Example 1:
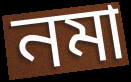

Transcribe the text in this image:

নমা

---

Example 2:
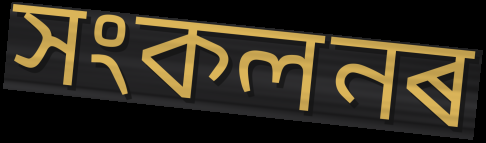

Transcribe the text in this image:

সংকলনৰ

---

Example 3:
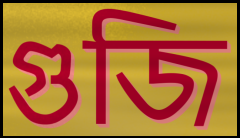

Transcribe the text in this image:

গুজি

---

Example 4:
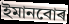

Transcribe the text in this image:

ইমানবোৰ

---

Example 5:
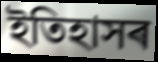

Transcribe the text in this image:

ইতিহাসৰ